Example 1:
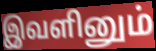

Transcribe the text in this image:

இவளினும்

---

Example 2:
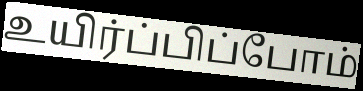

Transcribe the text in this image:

உயிர்ப்பிப்போம்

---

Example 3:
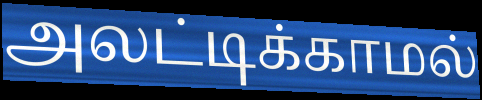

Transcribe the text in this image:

அலட்டிக்காமல்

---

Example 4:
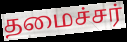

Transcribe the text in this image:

தமைச்சர்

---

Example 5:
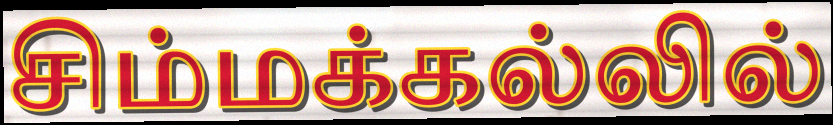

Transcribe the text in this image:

சிம்மக்கல்லில்